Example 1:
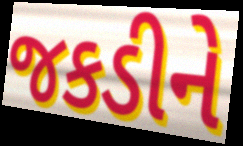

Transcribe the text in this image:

જકડીને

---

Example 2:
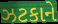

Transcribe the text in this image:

ઝટકાને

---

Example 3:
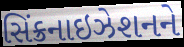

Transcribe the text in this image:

સિંક્રનાઇઝેશનને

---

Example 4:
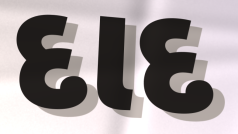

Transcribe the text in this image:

દાદ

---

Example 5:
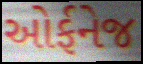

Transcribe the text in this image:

ઓર્ફનેજ